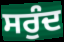
ਸਰੁੰਦ